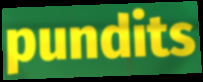
pundits